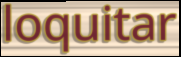
loquitar